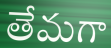
తేమగా